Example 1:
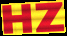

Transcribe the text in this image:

HZ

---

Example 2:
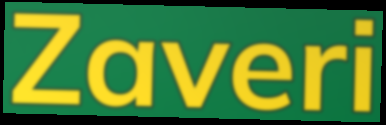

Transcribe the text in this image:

Zaveri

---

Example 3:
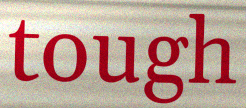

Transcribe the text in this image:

tough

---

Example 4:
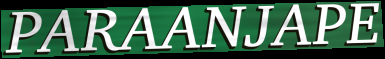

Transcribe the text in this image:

PARAANJAPE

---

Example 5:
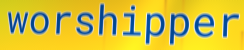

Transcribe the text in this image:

worshipper